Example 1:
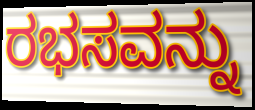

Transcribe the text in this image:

ರಭಸವನ್ನು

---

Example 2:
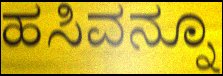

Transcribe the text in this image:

ಹಸಿವನ್ನೂ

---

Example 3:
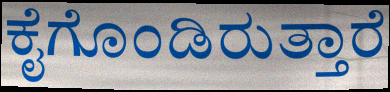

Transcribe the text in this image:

ಕೈಗೊಂಡಿರುತ್ತಾರೆ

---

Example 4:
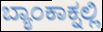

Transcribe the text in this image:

ಬ್ಯಾಂಕಾಕ್ನಲ್ಲಿ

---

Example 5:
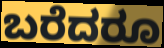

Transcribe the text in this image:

ಬರೆದರೂ